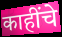
काहींचे